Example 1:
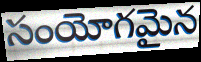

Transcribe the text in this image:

సంయోగమైన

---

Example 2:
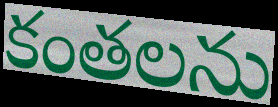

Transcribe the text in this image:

కంతలను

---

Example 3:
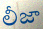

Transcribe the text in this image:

లీజా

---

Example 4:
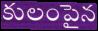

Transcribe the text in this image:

కులంపైన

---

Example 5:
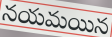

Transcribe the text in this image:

నయమయిన